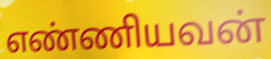
எண்ணியவன்